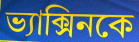
ভ্যাক্সিনকে